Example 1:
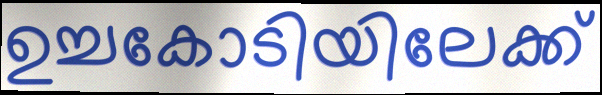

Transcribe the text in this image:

ഉച്ചകോടിയിലേക്ക്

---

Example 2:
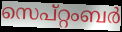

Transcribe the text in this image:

സെപ്റ്റംബർ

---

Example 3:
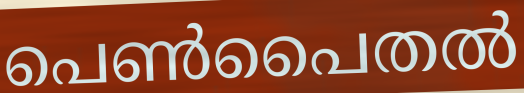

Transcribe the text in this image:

പെൺപൈതൽ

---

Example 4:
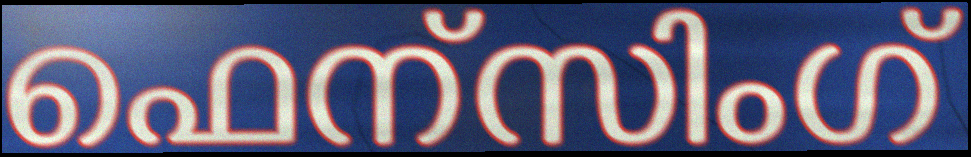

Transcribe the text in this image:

ഫെന്സിംഗ്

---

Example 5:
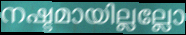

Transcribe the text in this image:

നഷ്ടമായില്ലല്ലോ